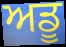
ਅਡੂ